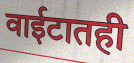
वाईटातही